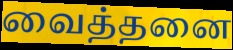
வைத்தனை